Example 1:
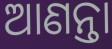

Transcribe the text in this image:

ଆଣନ୍ତା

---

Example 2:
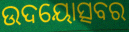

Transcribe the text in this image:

ଉଦୟୋତ୍ସବର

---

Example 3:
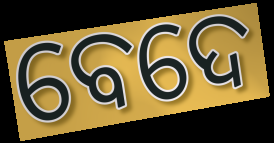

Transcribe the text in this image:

ବେଦେ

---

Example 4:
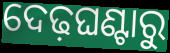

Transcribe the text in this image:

ଦେଢ଼ଘଣ୍ଟାରୁ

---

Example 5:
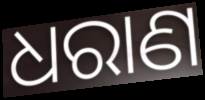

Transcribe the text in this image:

ଧରାଣ